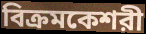
বিক্রমকেশরী